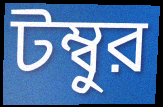
টম্বুর